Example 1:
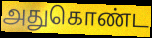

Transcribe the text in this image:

அதுகொண்ட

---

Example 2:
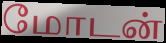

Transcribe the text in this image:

மோடன்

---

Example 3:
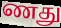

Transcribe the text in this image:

ணது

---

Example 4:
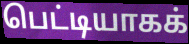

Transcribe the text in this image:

பெட்டியாகக்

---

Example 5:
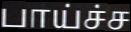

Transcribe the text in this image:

பாய்ச்ச